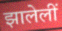
झालेलीं